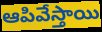
ఆపివేస్తాయి